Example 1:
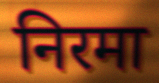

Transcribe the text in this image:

निरमा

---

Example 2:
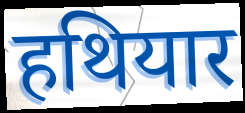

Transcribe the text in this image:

हथियार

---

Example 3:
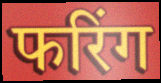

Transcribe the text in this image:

फरिंग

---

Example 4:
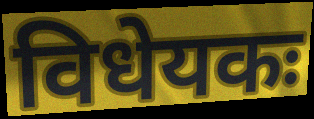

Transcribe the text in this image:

विधेयकः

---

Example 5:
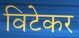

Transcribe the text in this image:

विटेकर